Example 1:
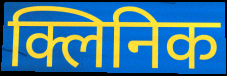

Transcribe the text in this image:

क्लिनिक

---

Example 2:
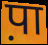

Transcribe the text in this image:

प़ा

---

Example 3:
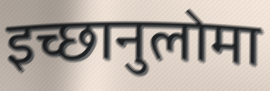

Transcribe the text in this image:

इच्छानुलोमा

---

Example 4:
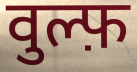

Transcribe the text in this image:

वुल्फ़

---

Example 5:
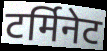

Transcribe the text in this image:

टर्मिनेट